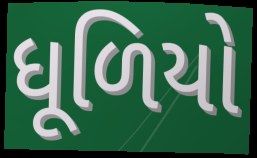
ધૂળિયો